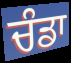
ਚੰਡਾ